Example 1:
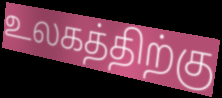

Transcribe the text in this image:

உலகத்திற்கு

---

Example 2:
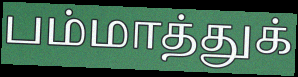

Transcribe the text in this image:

பம்மாத்துக்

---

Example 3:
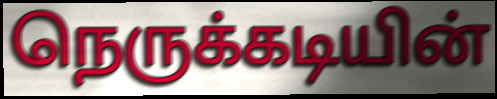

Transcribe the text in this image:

நெருக்கடியின்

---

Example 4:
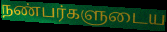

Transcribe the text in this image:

நண்பர்களுடைய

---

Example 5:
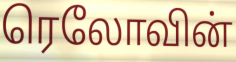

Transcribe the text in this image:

ரெலோவின்